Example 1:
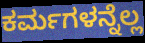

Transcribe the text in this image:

ಕರ್ಮಗಳನ್ನೆಲ್ಲ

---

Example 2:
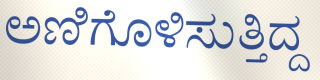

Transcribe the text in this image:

ಅಣಿಗೊಳಿಸುತ್ತಿದ್ದ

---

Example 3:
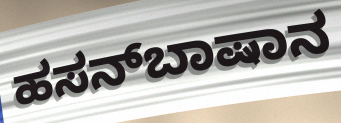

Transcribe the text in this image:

ಹಸನ್‌ಬಾಷಾನ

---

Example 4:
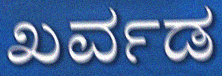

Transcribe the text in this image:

ಖರ್ವಡ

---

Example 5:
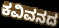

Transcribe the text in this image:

ಕವಿವನದ